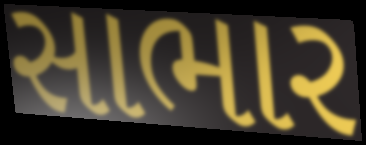
સાભાર